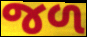
જળ